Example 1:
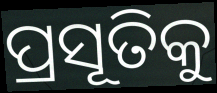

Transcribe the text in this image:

ପ୍ରସୂତିକୁ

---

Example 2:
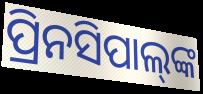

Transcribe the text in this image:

ପ୍ରିନସିପାଲ୍‍ଙ୍କ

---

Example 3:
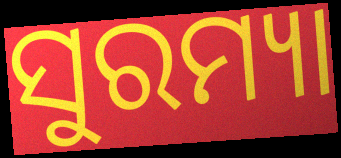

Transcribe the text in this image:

ସୁରମ୍ୟା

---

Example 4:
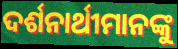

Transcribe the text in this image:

ଦର୍ଶନାର୍ଥୀମାନଙ୍କୁ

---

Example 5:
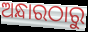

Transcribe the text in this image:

ଅନ୍ଧାରଠାରୁ